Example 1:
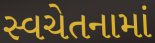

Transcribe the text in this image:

સ્વચેતનામાં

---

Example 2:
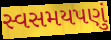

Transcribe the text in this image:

સ્વસમયપણું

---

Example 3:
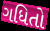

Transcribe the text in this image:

ગધિતો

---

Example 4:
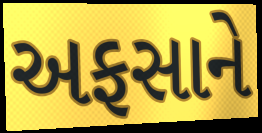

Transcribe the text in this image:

અફસાને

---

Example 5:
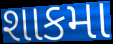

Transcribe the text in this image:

શાકમા